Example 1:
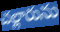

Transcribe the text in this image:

చల్లారును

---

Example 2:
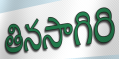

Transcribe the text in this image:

తినసాగిరి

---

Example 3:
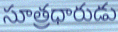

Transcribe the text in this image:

సూత్రధారుడు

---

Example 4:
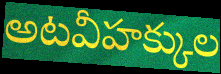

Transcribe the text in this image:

అటవీహక్కుల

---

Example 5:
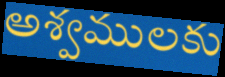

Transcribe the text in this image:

అశ్వములకు